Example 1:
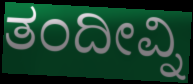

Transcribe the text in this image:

ತಂದೀವ್ನಿ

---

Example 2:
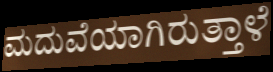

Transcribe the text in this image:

ಮದುವೆಯಾಗಿರುತ್ತಾಳೆ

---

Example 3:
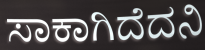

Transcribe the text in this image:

ಸಾಕಾಗಿದೆದನಿ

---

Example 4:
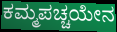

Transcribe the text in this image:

ಕಮ್ಮಪಚ್ಚಯೇನ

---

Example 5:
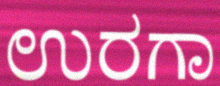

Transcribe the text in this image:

ಉರಗಾ